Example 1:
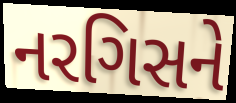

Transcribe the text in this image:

નરગિસને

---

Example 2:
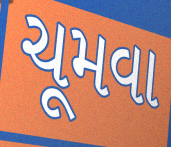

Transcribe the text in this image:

ચૂમવા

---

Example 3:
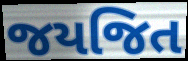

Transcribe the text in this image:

જયજિત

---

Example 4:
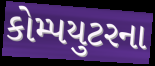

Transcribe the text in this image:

કોમ્પયુટરના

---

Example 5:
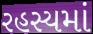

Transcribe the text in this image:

રહસ્યમાં